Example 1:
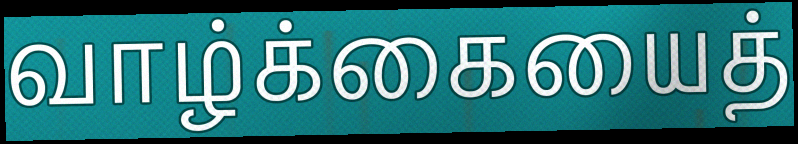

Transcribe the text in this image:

வாழ்க்கையைத்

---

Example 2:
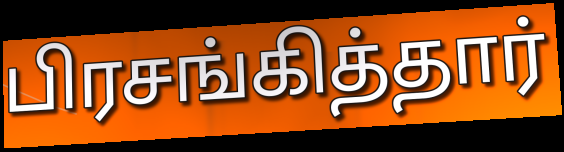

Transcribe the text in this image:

பிரசங்கித்தார்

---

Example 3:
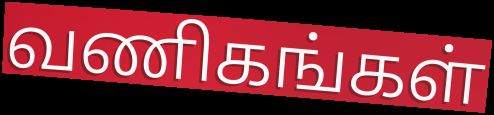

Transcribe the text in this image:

வணிகங்கள்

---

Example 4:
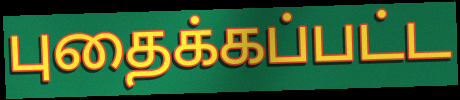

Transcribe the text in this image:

புதைக்கப்பட்ட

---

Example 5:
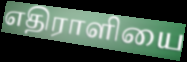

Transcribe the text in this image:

எதிராளியை